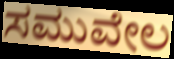
ಸಮುವೇಲ